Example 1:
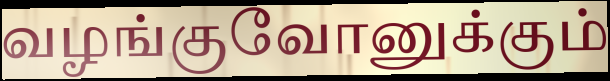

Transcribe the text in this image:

வழங்குவோனுக்கும்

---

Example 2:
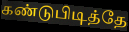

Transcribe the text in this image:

கண்டுபிடித்தே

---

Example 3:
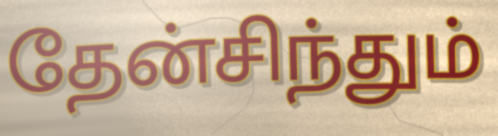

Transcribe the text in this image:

தேன்சிந்தும்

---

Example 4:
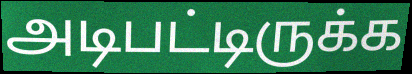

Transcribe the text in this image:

அடிபட்டிருக்க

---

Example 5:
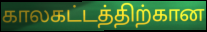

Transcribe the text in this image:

காலகட்டத்திற்கான